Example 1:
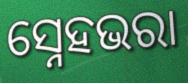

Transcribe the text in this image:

ସ୍ନେହଭରା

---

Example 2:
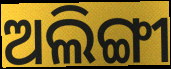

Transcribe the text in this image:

ଅଲିଙ୍ଗୀ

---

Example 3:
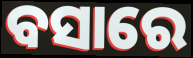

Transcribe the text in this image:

ବସାରେ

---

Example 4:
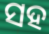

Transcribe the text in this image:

ସହ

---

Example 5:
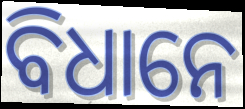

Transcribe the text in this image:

ବିଧାନେ